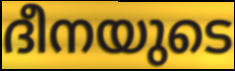
ദീനയുടെ